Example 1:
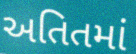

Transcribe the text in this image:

અતિતમાં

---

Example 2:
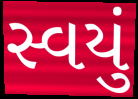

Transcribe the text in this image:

સ્વયું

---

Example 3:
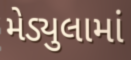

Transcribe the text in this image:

મેડ્યુલામાં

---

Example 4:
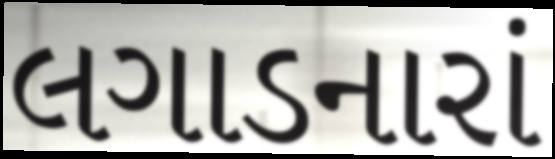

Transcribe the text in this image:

લગાડનારાં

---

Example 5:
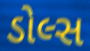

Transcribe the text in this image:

ડોલ્સ